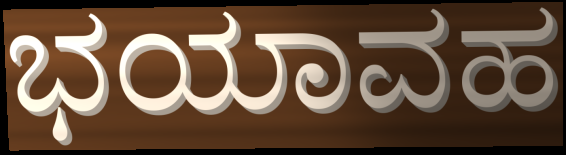
ಭಯಾವಹ